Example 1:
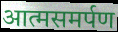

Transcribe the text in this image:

आत्‍मसमर्पण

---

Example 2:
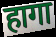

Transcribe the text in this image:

हागा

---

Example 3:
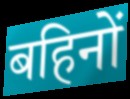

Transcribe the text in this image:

बहिनों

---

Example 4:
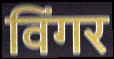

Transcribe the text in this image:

विंगर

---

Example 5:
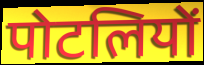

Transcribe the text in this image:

पोटलियों